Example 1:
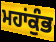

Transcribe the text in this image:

ਮਹਾਂਕੁੰਭ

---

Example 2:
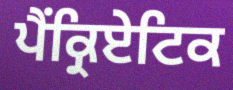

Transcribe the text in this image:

ਪੈਂਕ੍ਰਿਏਟਿਕ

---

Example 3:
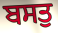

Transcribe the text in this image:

ਬਸਤੁ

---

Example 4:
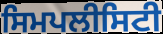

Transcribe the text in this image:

ਸਿਮਪਲੀਸਿਟੀ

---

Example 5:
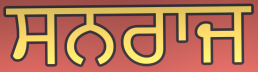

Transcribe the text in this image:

ਸਨਰਾਜ